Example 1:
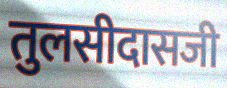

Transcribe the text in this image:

तुलसीदासजी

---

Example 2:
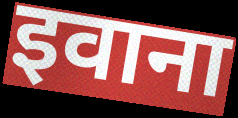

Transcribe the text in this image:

इवाना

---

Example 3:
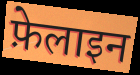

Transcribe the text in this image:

फ़ेलाइन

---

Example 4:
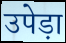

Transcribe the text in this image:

उपेड़ा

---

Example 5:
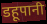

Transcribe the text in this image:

डहूपानी